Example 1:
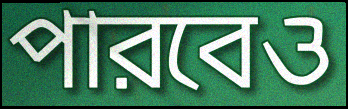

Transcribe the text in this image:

পারবেও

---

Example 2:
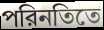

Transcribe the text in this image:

পরিনতিতে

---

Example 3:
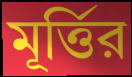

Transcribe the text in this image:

মূর্ত্তির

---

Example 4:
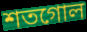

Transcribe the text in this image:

শতগোল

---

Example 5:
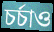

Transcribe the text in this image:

চর্চাও